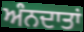
ਅੰਨਦਾਤਾਂ